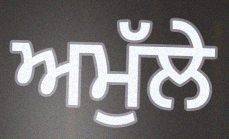
ਅਮੁੱਲੇ